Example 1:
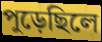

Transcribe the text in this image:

পুড়েছিলে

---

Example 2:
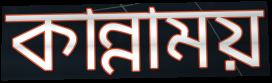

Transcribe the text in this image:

কান্নাময়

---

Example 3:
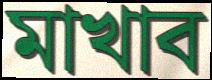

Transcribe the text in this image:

মাখাব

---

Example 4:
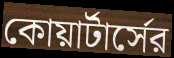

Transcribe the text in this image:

কোয়ার্টার্সের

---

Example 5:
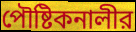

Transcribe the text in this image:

পৌষ্টিকনালীর